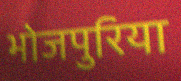
भोजपुरिया